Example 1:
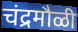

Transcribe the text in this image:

चंद्रमौळी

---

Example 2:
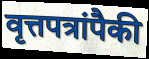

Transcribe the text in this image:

वृत्तपत्रांपैकी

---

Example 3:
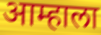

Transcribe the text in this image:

आम्हाला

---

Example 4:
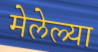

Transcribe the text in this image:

मेलेल्या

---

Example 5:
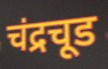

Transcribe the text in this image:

चंद्रचूड